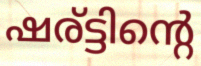
ഷര്ട്ടിന്റെ